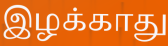
இழக்காது